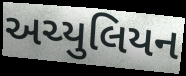
અચ્યુલિયન